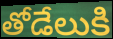
తోడేలుకి